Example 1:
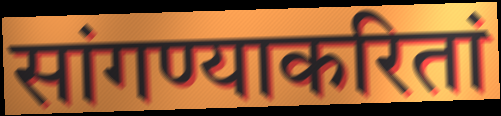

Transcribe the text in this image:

सांगण्याकरितां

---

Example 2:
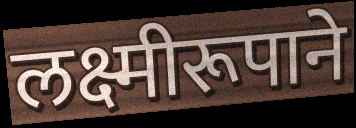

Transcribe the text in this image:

लक्ष्मीरूपाने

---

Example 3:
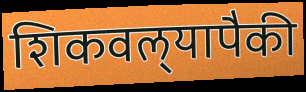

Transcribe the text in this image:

शिकवल्यापैकी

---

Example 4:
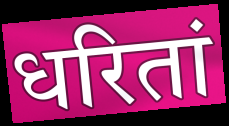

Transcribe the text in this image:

धरितां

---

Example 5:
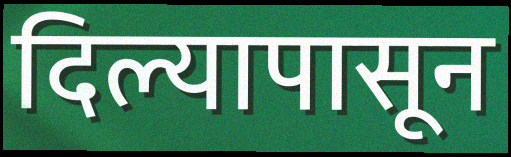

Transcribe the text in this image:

दिल्यापासून